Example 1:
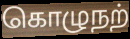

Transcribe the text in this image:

கொழுநற்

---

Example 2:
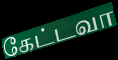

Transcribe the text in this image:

கேட்டவா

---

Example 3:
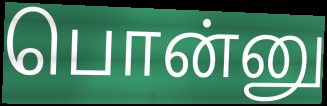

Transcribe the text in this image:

பொன்னு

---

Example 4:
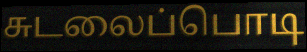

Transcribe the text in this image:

சுடலைப்பொடி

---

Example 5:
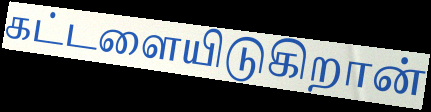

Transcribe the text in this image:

கட்டளையிடுகிறான்